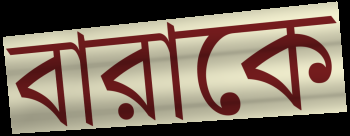
বারাকে